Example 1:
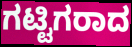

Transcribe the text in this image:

ಗಟ್ಟಿಗರಾದ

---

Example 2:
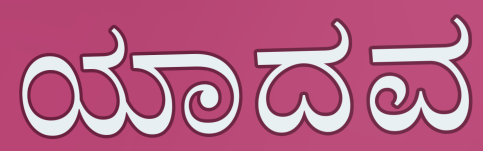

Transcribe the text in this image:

ಯಾದವ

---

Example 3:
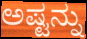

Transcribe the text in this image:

ಅಷ್ಟನ್ನು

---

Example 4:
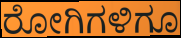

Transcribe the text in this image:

ರೋಗಿಗಳಿಗೂ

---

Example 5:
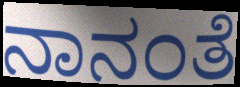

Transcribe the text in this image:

ನಾನಂತೆ